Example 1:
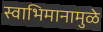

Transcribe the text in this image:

स्वाभिमानामुळे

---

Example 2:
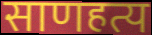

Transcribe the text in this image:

साणहत्य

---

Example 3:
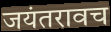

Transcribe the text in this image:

जयंतरावच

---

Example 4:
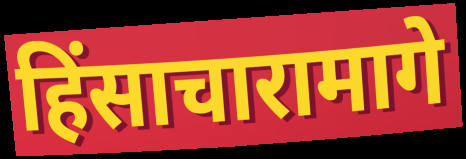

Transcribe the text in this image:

हिंसाचारामागे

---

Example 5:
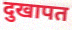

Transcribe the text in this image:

दुखापत